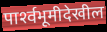
पार्श्वभूमीदेखील